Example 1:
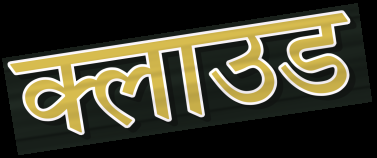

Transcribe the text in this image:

क्‍लाउड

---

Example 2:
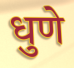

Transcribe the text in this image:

धुणे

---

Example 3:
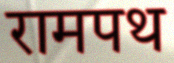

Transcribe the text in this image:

रामपथ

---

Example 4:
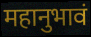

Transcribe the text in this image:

महानुभावं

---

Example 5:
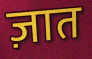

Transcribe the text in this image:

ज़ात